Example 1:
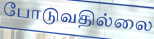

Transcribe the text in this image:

போடுவதில்லை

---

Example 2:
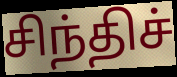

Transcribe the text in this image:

சிந்திச்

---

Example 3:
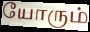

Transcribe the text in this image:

யோரும்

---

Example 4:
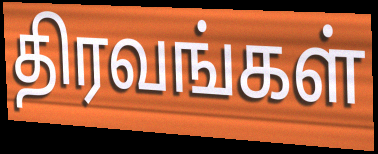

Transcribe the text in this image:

திரவங்கள்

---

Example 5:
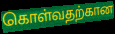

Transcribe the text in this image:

கொள்வதற்கான